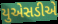
યુએસડીએ